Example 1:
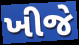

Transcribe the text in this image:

ખીજે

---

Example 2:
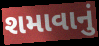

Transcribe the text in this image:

શમાવાનું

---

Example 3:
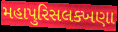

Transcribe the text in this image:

મહાપુરિસલક્ખણા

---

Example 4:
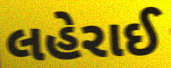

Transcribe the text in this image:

લહેરાઈ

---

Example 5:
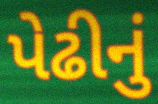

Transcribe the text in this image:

પેઢીનું